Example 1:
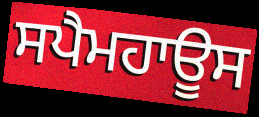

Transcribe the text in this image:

ਸਪੈਮਹਾਊਸ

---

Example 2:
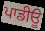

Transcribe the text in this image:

ਪਾਡੀਊ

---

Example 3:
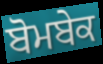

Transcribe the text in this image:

ਬੋਮਬੇਕ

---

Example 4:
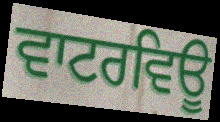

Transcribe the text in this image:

ਵਾਟਰਵਿਊ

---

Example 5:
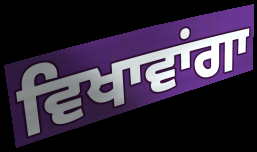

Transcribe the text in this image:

ਵਿਖਾਵਾਂਗਾ